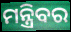
ମନ୍ତ୍ରିବର